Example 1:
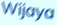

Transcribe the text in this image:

Wijaya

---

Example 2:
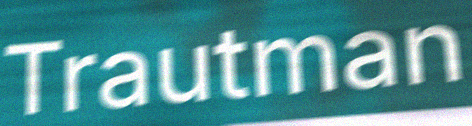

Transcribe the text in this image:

Trautman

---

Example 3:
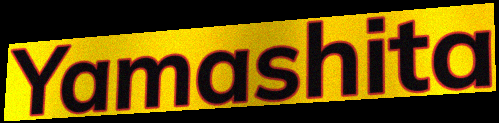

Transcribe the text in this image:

Yamashita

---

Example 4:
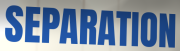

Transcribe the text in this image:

SEPARATION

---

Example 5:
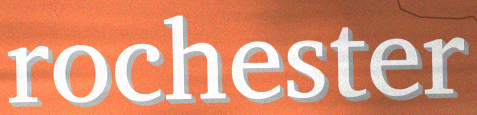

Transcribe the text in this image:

rochester